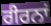
ਰੀਰਨਾਂ